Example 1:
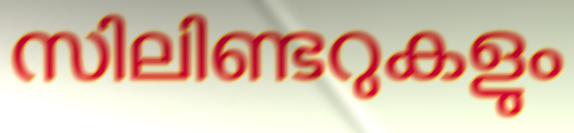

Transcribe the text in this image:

സിലിണ്ടറുകളും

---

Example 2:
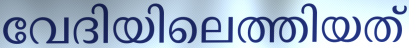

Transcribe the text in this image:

വേദിയിലെത്തിയത്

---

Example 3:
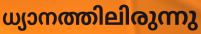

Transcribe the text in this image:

ധ്യാനത്തിലിരുന്നു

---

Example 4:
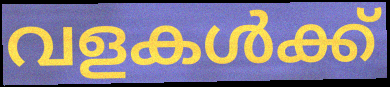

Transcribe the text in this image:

വളകൾക്ക്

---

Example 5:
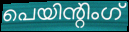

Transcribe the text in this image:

പെയിന്റിംഗ്